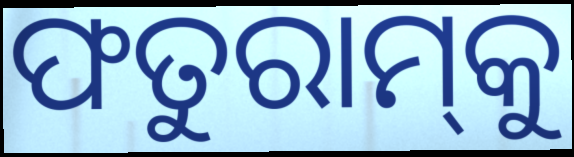
ଫତୁରାମ୍‌କୁ